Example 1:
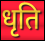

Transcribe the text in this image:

धृति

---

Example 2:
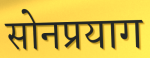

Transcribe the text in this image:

सोनप्रयाग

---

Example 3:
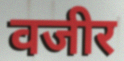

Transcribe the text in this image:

वजीर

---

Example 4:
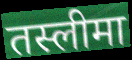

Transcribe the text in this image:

तस्लीमा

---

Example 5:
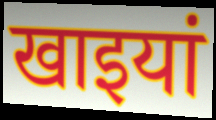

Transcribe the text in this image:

खाइयां